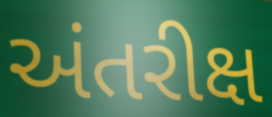
અંતરીક્ષ